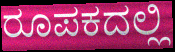
ರೂಪಕದಲ್ಲಿ